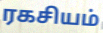
ரகசியம்